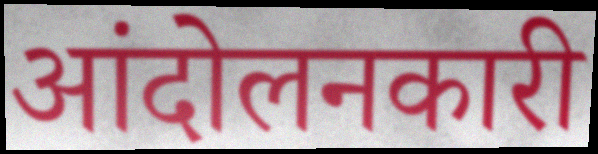
आंदोलनकारी